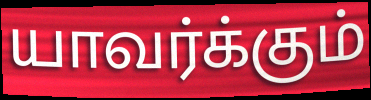
யாவர்க்கும்